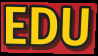
EDU